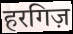
हरगिज़